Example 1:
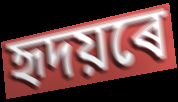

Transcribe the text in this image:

হৃদয়ৰে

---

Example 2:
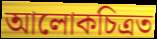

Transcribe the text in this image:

আলোকচিত্ৰত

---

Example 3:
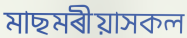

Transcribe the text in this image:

মাছমৰীয়াসকল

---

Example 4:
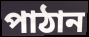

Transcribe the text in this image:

পাঠান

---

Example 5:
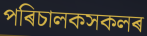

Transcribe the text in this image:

পৰিচালকসকলৰ